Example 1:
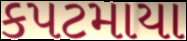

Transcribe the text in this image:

કપટમાયા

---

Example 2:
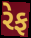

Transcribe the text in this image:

રેફ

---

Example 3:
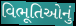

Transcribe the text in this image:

વિભૂતિઓનું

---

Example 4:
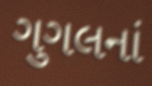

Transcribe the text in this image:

ગુગલનાં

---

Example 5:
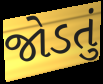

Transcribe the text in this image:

જોડતું